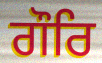
ਗੌਰਿ